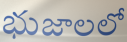
భుజాలలో